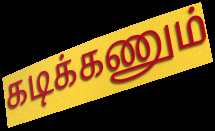
கடிக்கணும்